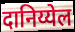
दानिय्येल